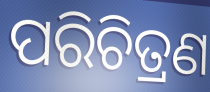
ପରିଚିତ୍ରଣ